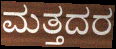
ಮತ್ತದರ